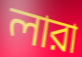
লারা